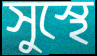
সুস্থে